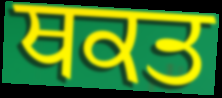
ਥਕਤ